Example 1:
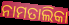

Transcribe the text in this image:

ନାମତାଲିକା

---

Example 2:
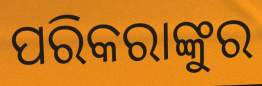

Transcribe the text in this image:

ପରିକରାଙ୍କୁର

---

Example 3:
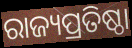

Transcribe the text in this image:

ରାଜ୍ୟପ୍ରତିଷ୍ଠା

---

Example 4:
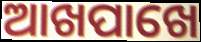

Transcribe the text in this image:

ଆଖପାଖେ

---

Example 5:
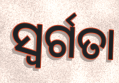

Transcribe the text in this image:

ସ୍ବର୍ଗତା